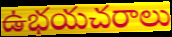
ఉభయచరాలు